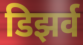
डिझर्व